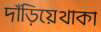
দাঁড়িয়েথাকা